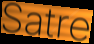
Satre